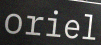
oriel